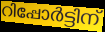
റിപ്പോർട്ടിന്